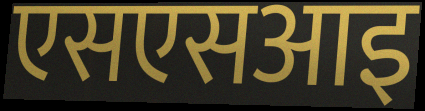
एसएसआइ